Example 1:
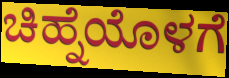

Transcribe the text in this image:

ಚಿಹ್ನೆಯೊಳಗೆ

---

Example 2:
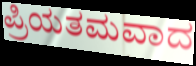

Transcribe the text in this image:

ಪ್ರಿಯತಮವಾದ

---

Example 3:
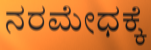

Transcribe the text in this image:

ನರಮೇಧಕ್ಕೆ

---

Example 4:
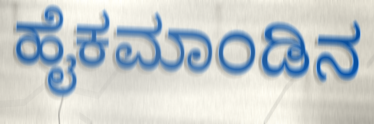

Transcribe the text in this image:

ಹೈಕಮಾಂಡಿನ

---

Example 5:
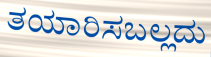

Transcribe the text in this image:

ತಯಾರಿಸಬಲ್ಲದು